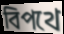
বিপথে